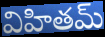
విహితమ్